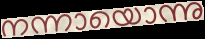
നന്നായൊന്നു